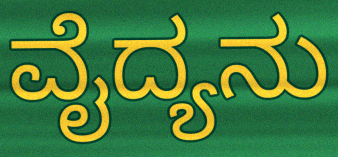
ವೈದ್ಯನು